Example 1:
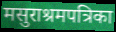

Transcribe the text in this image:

मसुराश्रमपत्रिका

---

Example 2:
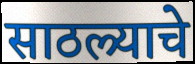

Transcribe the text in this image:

साठल्याचे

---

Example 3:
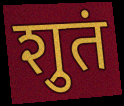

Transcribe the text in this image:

श्रुतं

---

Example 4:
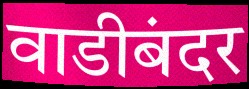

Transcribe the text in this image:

वाडीबंदर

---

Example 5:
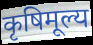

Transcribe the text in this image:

कृषिमूल्य